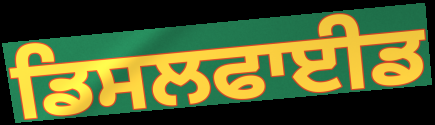
ਡਿਸਲਫਾਈਡ